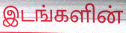
இடங்களின்